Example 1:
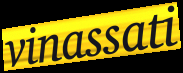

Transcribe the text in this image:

vinassati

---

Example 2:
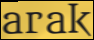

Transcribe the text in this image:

arak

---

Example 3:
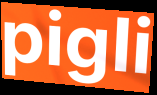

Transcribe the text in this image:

pigli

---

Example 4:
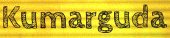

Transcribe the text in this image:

Kumarguda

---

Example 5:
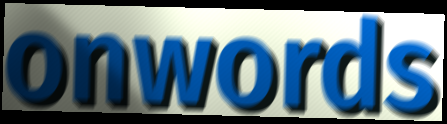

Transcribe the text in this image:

onwords